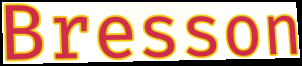
Bresson